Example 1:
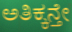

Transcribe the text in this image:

ಅತಿಕ್ಕನ್ತೇ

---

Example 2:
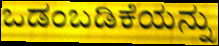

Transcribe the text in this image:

ಒಡಂಬಡಿಕೆಯನ್ನು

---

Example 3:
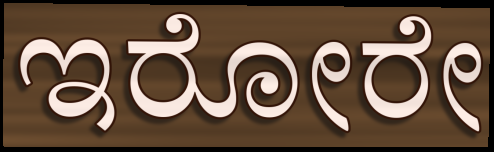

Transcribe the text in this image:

ಇರೋರೇ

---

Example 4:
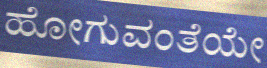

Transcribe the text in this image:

ಹೋಗುವಂತೆಯೇ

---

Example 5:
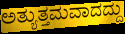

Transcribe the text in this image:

ಅತ್ಯುತ್ತಮವಾದದ್ದು